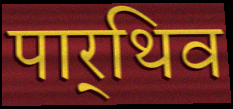
पार्थिव